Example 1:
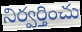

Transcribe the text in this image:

నిర్వర్తించు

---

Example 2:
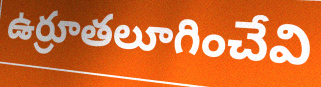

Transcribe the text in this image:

ఉర్రూతలూగించేవి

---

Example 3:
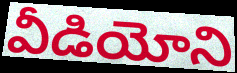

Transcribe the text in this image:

వీడియోని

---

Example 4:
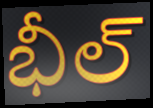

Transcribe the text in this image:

భీల్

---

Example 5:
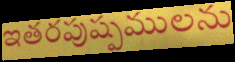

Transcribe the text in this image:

ఇతరపుష్పములను